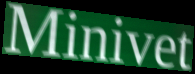
Minivet